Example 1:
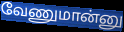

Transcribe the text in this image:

வேணுமான்னு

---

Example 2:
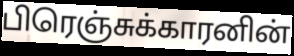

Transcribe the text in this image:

பிரெஞ்சுக்காரனின்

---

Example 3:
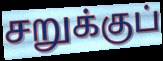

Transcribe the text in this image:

சறுக்குப்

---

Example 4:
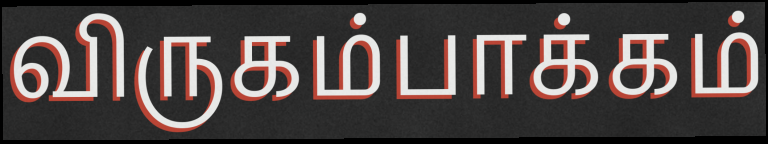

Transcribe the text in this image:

விருகம்பாக்கம்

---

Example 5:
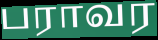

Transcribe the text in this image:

பராவர